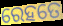
ରେହତେ